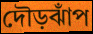
দৌড়ঝাঁপ